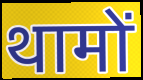
थामों